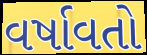
વર્ષાવતો